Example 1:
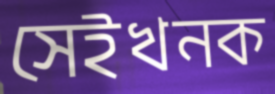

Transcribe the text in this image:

সেইখনক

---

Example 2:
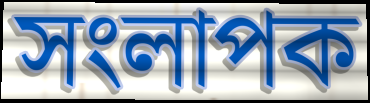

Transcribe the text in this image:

সংলাপক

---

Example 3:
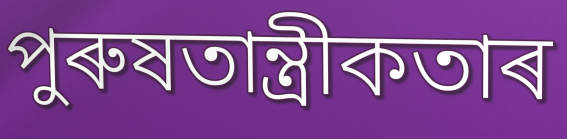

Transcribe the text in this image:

পুৰুষতান্ত্ৰীকতাৰ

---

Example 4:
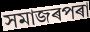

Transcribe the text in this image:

সমাজৰপৰা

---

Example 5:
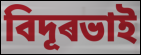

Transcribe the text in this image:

বিদূৰভাই